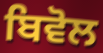
ਬਿਵੋਲ